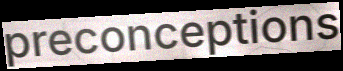
preconceptions